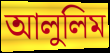
আলুলিম